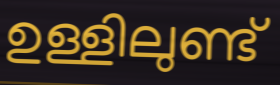
ഉള്ളിലുണ്ട്